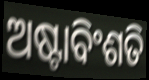
ଅଷ୍ଟାବିଂଶତି